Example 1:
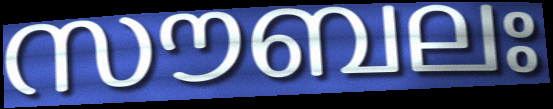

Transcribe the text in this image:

സൗബലഃ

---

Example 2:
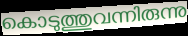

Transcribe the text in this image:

കൊടുത്തുവന്നിരുന്നു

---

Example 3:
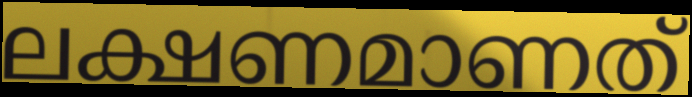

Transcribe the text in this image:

ലക്ഷണമാണത്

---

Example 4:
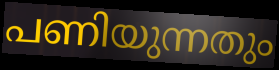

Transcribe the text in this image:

പണിയുന്നതും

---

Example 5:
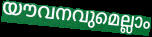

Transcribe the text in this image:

യൗവനവുമെല്ലാം